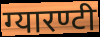
ग्यारण्टी